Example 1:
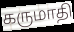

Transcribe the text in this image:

கருமாதி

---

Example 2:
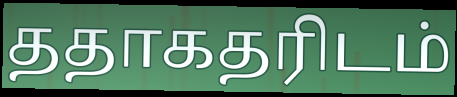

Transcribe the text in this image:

ததாகதரிடம்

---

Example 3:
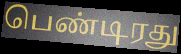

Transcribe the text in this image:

பெண்டிரது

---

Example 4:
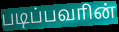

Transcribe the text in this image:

படிப்பவரின்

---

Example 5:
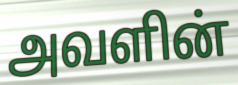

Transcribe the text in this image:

அவளின்